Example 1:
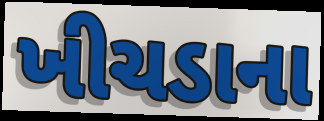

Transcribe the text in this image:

ખીચડાના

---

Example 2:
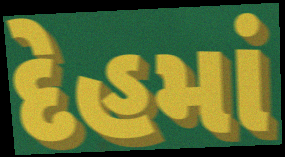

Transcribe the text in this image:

દેહમાં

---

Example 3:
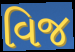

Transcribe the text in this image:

વિજ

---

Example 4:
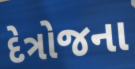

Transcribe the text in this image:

દેત્રોજના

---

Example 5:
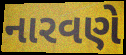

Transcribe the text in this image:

નારવણે